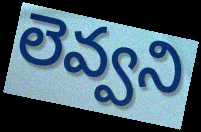
లెవ్వని